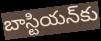
బాస్టియన్‌కు